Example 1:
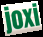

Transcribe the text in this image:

joxi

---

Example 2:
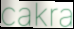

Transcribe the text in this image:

cakra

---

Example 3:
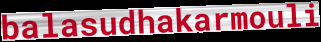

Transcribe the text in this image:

balasudhakarmouli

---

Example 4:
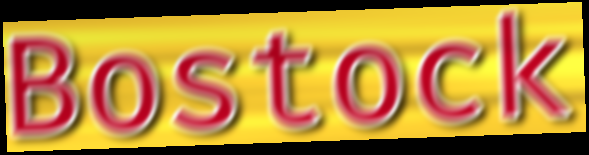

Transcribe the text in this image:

Bostock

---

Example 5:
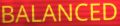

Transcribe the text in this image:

BALANCED